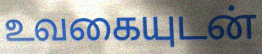
உவகையுடன்